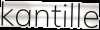
kantille